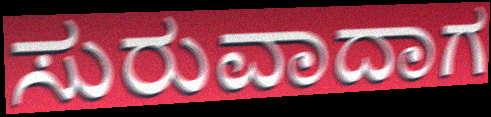
ಸುರುವಾದಾಗ